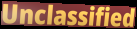
Unclassified